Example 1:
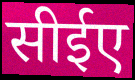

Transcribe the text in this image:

सीईए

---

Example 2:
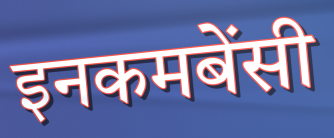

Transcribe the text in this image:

इनकमबेंसी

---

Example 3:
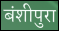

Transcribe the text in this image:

बंशीपुरा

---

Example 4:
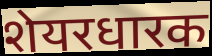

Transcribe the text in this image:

शेयरधारक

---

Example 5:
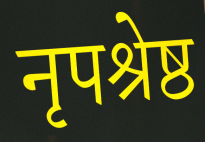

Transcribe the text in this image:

नृपश्रेष्ठ